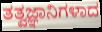
ತತ್ವಜ್ಞಾನಿಗಳಾದ